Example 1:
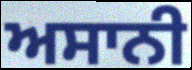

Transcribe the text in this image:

ਅਸਾਨੀ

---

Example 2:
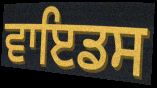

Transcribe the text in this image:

ਵਾਇਡਸ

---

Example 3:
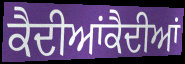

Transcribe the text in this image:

ਕੈਦੀਆਂਕੈਦੀਆਂ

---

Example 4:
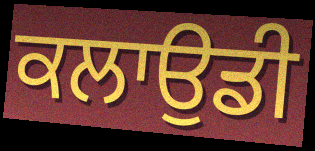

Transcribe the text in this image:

ਕਲਾਉਡੀ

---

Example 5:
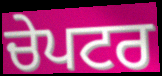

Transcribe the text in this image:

ਚੇਪਟਰ